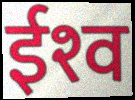
ईश्व